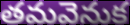
తమవెనుక